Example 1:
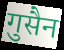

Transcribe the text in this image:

गुसैन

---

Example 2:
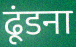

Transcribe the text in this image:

ढूंडना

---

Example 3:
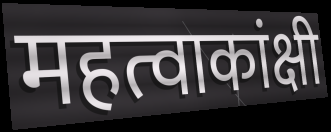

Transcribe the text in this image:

महत्‍वाकांक्षी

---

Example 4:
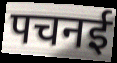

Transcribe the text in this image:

पचनई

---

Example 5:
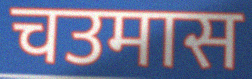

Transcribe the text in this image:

चउमास